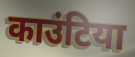
काउंटिया